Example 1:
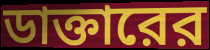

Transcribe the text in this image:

ডাক্তারের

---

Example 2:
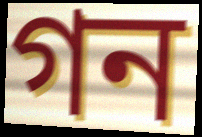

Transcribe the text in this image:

গন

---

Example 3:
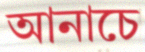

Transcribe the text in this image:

আনাচে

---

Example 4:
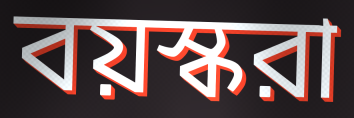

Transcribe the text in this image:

বয়স্করা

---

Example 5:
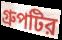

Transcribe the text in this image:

গ্রুপটির